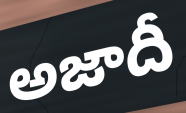
అజాదీ